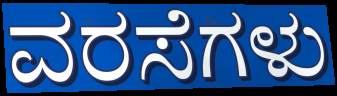
ವರಸೆಗಳು